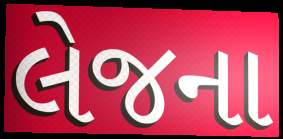
લેજના